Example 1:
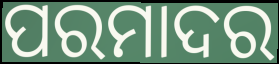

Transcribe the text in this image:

ପରମାଦର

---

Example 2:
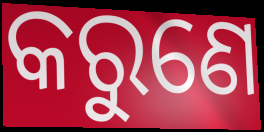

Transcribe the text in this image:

କରୁଣେ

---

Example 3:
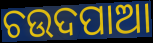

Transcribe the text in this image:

ଚଉଦପାଆ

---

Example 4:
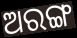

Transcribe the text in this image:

ଅରଙ୍ଗ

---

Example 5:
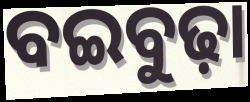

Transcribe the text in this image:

ବଇବୁଢ଼ା